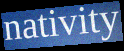
nativity